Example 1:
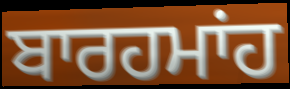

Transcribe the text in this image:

ਬਾਰਹਮਾਂਹ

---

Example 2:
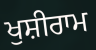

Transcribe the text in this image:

ਖੁਸ਼ੀਰਾਮ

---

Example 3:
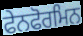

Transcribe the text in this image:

ਫੇਨਫੋਰਮਿਨ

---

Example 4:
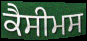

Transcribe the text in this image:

ਕੈਸੀਮਸ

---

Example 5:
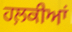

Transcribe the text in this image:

ਹਲ਼ਕੀਆਂ